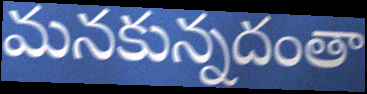
మనకున్నదంతా